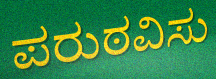
ಪರುಠವಿಸು